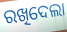
ରଖିଦେଲା